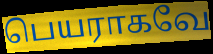
பெயராகவே